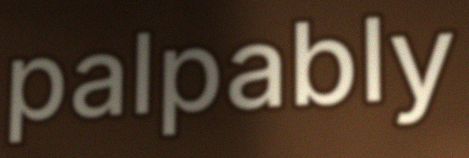
palpably